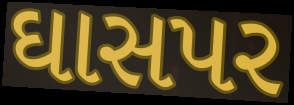
ઘાસપર